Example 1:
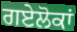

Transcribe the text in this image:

ਗਏਲੋਕਾਂ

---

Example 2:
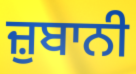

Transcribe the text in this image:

ਜ਼ੁਬਾਨੀ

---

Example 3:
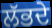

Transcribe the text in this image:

ਲੱਭਦੇ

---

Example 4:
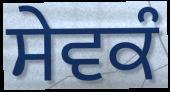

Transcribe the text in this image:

ਸੇਵਕੰ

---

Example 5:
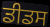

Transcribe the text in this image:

ਡੀਡਸ